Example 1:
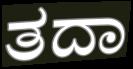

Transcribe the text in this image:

ತದಾ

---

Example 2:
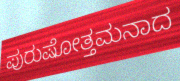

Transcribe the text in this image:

ಪುರುಷೋತ್ತಮನಾದ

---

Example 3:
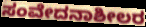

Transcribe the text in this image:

ಸಂವೇದನಾಶೀಲರ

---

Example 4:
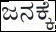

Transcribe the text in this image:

ಜನಕ್ಕೆ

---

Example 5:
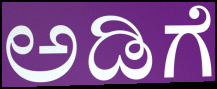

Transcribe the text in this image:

ಅಡಿಗೆ